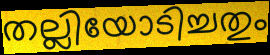
തല്ലിയോടിച്ചതും